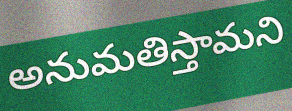
అనుమతిస్తామని